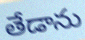
తేడాను